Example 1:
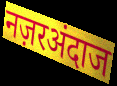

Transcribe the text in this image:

नज़रअंदाज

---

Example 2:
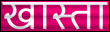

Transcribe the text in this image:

खास्ता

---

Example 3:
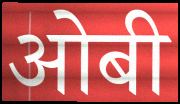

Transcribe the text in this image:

ओबी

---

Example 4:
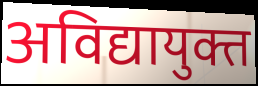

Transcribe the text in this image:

अविद्यायुक्त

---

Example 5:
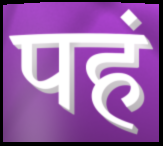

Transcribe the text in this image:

पहं